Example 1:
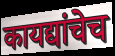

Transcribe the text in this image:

कायद्यांचेच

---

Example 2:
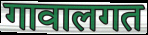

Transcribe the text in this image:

गावालगत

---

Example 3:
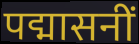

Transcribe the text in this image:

पद्मासनीं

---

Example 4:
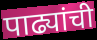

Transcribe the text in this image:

पाढ्यांची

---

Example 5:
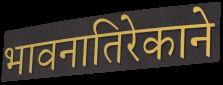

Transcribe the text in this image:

भावनातिरेकाने